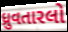
ધ્રુવતારલો